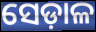
ସେଡ଼ାଳ